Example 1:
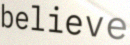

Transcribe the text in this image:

believe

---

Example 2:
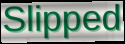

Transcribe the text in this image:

Slipped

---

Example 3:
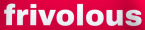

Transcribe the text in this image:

frivolous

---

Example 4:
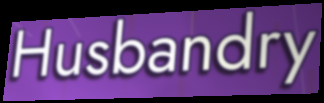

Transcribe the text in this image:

Husbandry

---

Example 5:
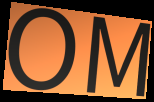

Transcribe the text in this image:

OM